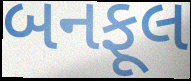
બનફૂલ